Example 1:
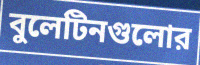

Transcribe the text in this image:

বুলেটিনগুলোর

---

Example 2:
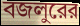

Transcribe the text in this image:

বজলুরের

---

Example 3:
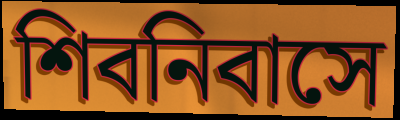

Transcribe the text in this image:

শিবনিবাসে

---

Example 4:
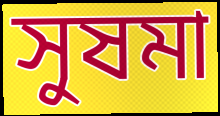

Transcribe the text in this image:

সুষমা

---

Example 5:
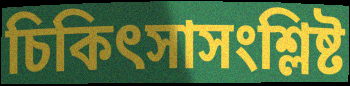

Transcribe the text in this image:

চিকিৎসাসংশ্লিষ্ট